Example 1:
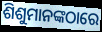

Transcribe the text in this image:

ଶିଶୁମାନଙ୍କଠାରେ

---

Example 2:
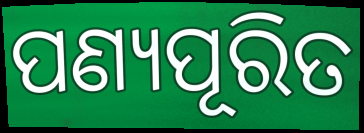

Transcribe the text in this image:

ପଣ୍ୟପୂରିତ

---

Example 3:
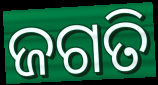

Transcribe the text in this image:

ଜଗତି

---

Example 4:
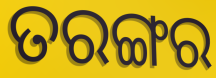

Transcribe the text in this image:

ତରଙ୍ଗର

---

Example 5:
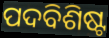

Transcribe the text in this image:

ପଦବିଶିଷ୍ଟ